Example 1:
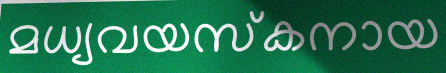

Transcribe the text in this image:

മധ്യവയസ്കനായ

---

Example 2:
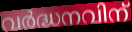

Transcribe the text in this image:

വർദ്ധനവിന്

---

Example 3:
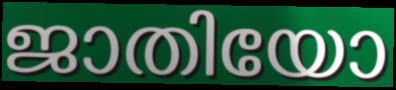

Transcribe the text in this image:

ജാതിയോ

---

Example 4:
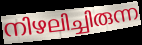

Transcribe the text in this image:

നിഴലിച്ചിരുന്ന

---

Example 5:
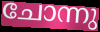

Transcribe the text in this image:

ചോന്നു